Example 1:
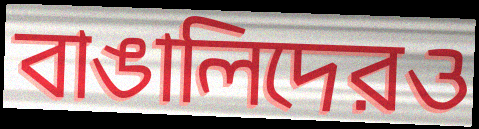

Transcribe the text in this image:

বাঙালিদেরও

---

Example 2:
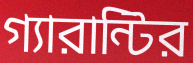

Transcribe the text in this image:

গ্যারান্টির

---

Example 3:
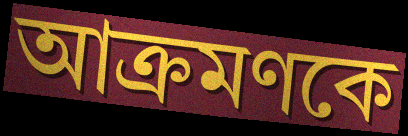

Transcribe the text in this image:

আক্রমণকে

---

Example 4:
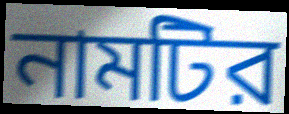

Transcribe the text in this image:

নামটির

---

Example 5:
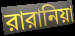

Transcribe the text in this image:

রারানিয়া